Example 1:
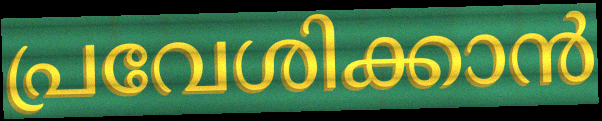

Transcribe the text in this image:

പ്രവേശിക്കാൻ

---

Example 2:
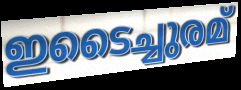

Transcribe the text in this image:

ഇടൈച്ചുരമ്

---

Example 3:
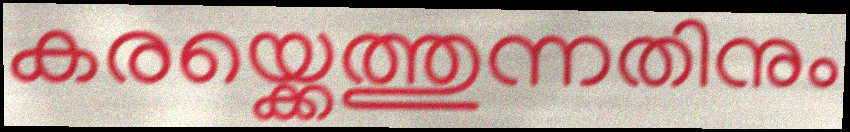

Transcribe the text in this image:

കരയ്ക്കെത്തുന്നതിനും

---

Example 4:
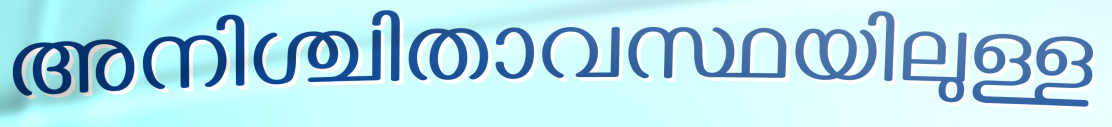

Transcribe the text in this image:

അനിശ്ചിതാവസ്ഥയിലുള്ള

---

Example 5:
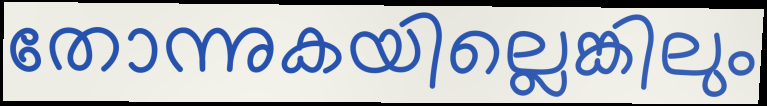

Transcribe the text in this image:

തോന്നുകയില്ലെങ്കിലും